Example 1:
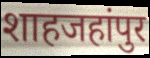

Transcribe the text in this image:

शाहजहांपुर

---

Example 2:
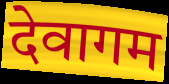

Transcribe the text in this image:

देवागम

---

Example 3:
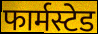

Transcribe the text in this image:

फार्मस्टेड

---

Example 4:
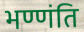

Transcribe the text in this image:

भण्णंति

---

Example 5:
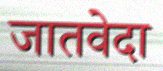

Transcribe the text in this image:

जातवेदा